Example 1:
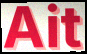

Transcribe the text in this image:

Ait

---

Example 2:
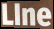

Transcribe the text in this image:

LIne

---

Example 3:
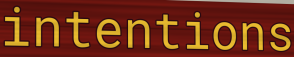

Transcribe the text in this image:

intentions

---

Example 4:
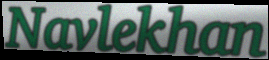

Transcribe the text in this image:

Navlekhan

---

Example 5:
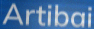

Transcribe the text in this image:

Artibai